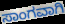
ಸಾಂಗವಾಗಿ